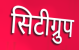
सिटीग्रुप